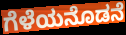
ಗೆಳೆಯನೊಡನೆ